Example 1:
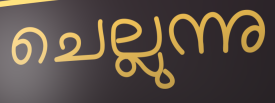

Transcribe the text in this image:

ചെല്ലുന്നു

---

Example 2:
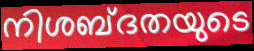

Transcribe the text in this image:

നിശബ്ദതയുടെ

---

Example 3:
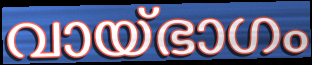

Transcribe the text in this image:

വായ്ഭാഗം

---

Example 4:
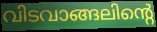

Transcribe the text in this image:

വിടവാങ്ങലിന്റെ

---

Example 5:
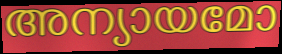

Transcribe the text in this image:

അന്യായമോ